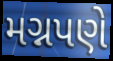
મગ્નપણે